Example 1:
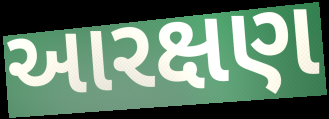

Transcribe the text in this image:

આરક્ષણ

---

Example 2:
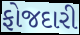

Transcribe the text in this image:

ફોજદારી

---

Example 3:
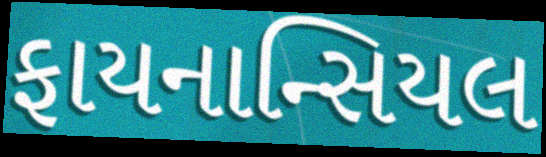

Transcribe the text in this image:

ફાયનાન્સિયલ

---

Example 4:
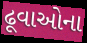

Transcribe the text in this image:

ઢૂવાઓના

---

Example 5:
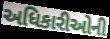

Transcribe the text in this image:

અધિકારીઓની